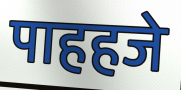
पाहहजे